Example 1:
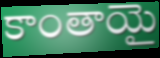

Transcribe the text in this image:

కాంతాయై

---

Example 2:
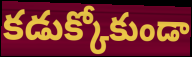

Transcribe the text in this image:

కడుక్కోకుండా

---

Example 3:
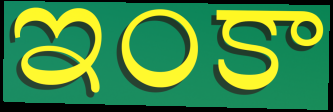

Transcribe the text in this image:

ఇంకా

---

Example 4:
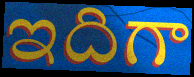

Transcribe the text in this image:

ఇదిగా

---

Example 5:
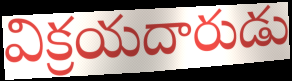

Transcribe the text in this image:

విక్రయదారుడు